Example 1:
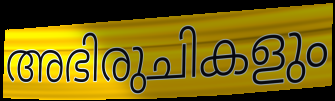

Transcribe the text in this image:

അഭിരുചികളും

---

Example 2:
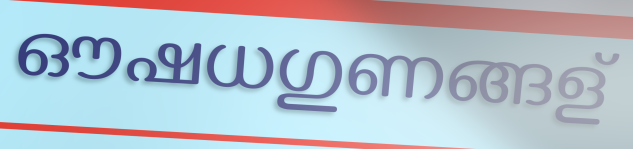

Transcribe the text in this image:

ഔഷധഗുണങ്ങള്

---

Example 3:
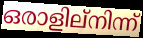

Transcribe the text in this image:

ഒരാളില്നിന്ന്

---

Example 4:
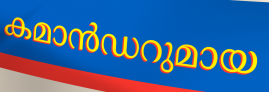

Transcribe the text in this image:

കമാൻഡറുമായ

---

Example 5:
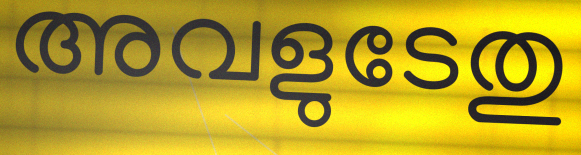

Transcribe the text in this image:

അവളുടേതു